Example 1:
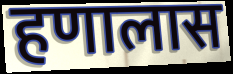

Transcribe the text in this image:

हणालास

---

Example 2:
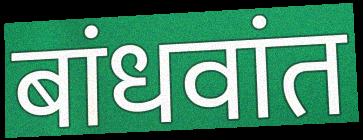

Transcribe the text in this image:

बांधवांत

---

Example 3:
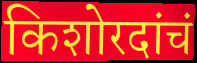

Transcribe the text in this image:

किशोरदांचं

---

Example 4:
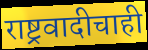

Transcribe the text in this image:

राष्ट्रवादीचाही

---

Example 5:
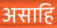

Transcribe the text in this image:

असाहि